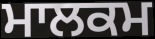
ਮਾਲਕਮ